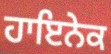
ਹਾਇਨੇਕ